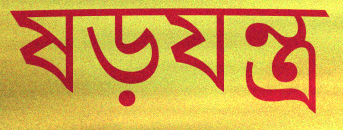
ষড়যন্ত্ৰ